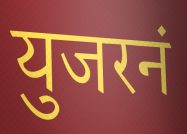
युजरनं